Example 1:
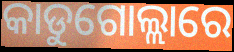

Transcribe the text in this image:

କାଡୁଗୋଲ୍ଲାରେ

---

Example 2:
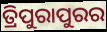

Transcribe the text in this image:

ତ୍ରିପୁରାପୁରର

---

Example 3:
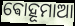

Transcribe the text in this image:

ଵୋହୂମାଆ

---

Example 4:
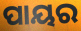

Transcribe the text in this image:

ପାୟର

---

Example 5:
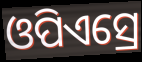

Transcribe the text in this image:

ଓପିଏସ୍ରେ